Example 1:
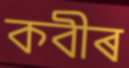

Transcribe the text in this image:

কবীৰ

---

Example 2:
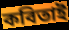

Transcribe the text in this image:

কবিতাই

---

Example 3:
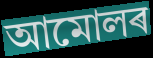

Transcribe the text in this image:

আমোলৰ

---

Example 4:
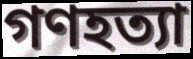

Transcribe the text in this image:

গণহত্যা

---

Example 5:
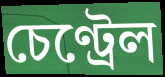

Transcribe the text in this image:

চেণ্ট্ৰেল